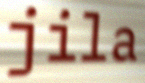
jila